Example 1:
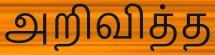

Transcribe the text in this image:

அறிவித்த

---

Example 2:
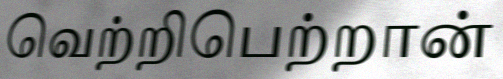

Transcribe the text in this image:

வெற்றிபெற்றான்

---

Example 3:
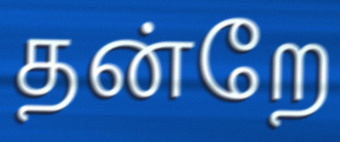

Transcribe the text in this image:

தன்றே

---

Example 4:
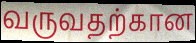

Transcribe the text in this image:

வருவதற்கான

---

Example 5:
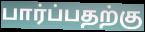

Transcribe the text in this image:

பார்ப்பதற்கு